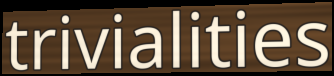
trivialities